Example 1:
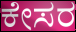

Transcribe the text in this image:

ಕೇಸರ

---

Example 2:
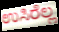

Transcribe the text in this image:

ಉಸಿರೆಲ್ಲ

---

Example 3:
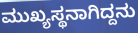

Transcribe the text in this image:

ಮುಖ್ಯಸ್ಥನಾಗಿದ್ದನು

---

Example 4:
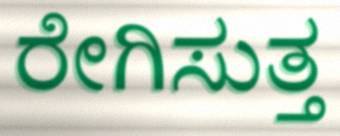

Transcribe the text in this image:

ರೇಗಿಸುತ್ತ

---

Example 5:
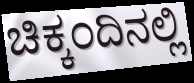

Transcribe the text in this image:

ಚಿಕ್ಕಂದಿನಲ್ಲಿ